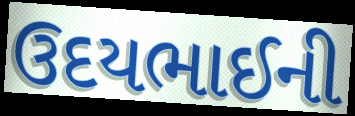
ઉદયભાઈની